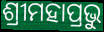
ଶ୍ରୀମହାପ୍ରଭୁ